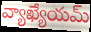
వ్యాఖ్యేయమ్